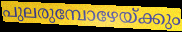
പുലരുമ്പോഴേയ്ക്കും